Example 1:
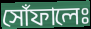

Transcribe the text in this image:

সোঁফালেঃ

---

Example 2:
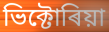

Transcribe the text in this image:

ভিক্টোৰিয়া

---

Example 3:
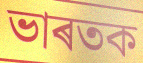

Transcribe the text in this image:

ভাৰতক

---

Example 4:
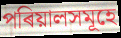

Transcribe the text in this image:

পৰিয়ালসমূহে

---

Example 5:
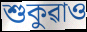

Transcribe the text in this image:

শুকুৱাও